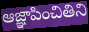
ఆజ్ఞాపించితిని